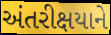
અંતરીક્ષયાને